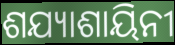
ଶଯ୍ୟାଶାୟିନୀ